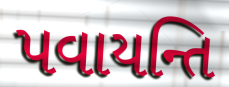
પવાયન્તિ